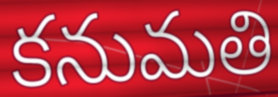
కనుమతి